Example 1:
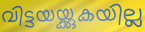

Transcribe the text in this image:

വിട്ടയയ്ക്കുകയില്ല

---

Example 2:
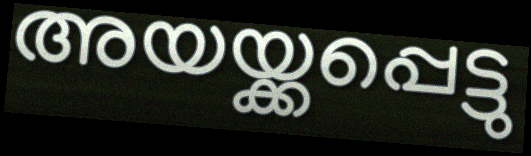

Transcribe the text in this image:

അയയ്ക്കപ്പെട്ടു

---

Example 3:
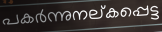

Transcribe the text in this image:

പകർന്നുനല്കപ്പെട്ട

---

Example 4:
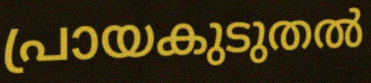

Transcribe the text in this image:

പ്രായകുടുതൽ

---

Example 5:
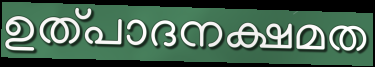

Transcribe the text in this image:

ഉത്പാദനക്ഷമത